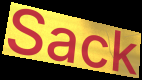
Sack